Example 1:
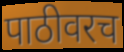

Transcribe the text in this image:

पाठीवरच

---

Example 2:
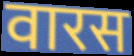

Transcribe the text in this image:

वारस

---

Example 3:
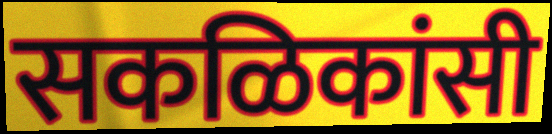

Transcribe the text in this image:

सकळिकांसी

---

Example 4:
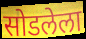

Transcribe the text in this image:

सोडलेला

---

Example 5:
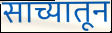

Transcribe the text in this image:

साच्यातून